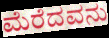
ಮೆರೆದವನು